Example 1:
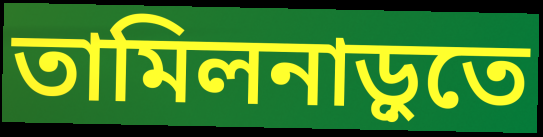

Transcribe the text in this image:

তামিলনাড়ুতে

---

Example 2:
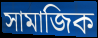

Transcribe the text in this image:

সামাজিক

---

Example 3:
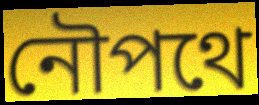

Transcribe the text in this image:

নৌপথে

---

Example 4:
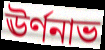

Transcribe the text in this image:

ঊর্ণনাভ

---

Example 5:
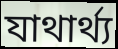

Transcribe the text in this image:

যাথার্থ্য